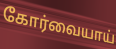
கோர்வையாய்